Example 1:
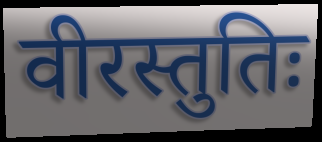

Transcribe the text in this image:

वीरस्तुतिः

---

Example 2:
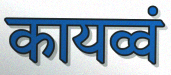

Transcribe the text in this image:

कायव्वं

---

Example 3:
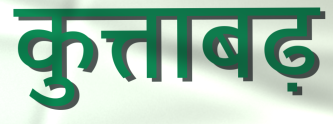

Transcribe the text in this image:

कुत्ताबढ़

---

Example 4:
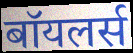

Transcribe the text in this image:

बॉयलर्स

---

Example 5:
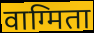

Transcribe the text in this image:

वाग्मिता